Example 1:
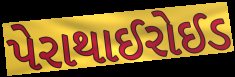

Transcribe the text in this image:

પેરાથાઈરોઈડ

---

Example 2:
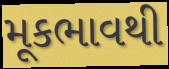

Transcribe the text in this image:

મૂકભાવથી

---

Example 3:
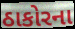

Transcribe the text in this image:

ઠાકોરના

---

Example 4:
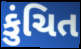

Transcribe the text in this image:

કુંચિત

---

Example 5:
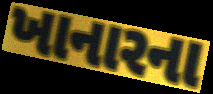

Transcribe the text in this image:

ખાનારના